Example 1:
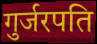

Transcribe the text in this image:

गुर्जरपति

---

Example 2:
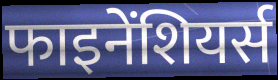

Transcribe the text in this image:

फाइनेंशियर्स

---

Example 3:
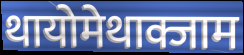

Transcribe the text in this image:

थायोमेथाक्जाम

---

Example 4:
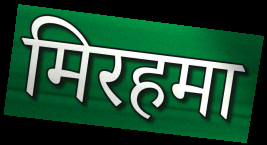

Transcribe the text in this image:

मिरहमा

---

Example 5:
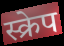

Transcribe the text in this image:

स्क्रेप